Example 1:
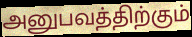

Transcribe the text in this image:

அனுபவத்திற்கும்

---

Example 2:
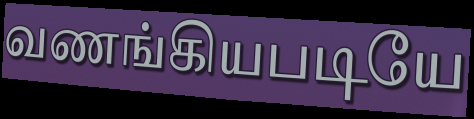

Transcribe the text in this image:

வணங்கியபடியே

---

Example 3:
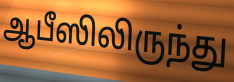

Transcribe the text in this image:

ஆபீஸிலிருந்து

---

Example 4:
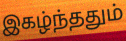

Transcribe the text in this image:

இகழ்ந்ததும்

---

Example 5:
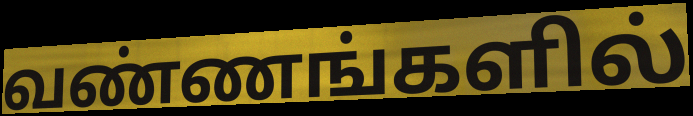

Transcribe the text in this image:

வண்ணங்களில்